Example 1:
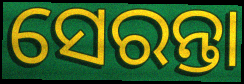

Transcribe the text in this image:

ସେରନ୍ତା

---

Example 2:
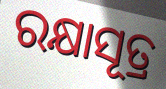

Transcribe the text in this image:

ରକ୍ଷାସୂତ୍ର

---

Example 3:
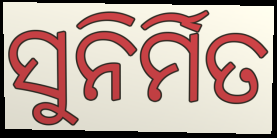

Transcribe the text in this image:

ସୁନିର୍ମିତ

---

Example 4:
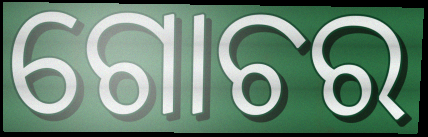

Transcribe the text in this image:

ଗୋଚର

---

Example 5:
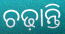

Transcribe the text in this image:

ଚଢ଼ାନ୍ତି